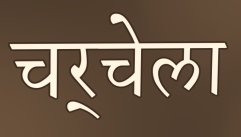
चर्चेला